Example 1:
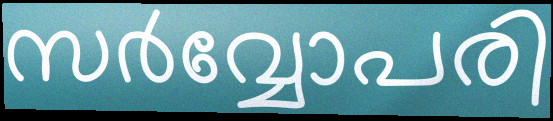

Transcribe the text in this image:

സർവ്വോപരി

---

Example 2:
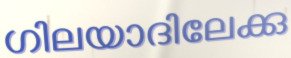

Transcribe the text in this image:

ഗിലയാദിലേക്കു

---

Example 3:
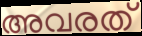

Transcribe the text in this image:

അവരത്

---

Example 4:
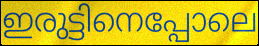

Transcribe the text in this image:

ഇരുട്ടിനെപ്പോലെ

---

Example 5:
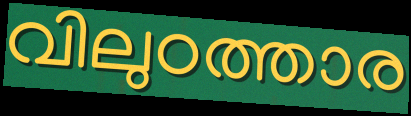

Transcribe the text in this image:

വിലുഠത്താര